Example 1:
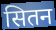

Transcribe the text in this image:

सितन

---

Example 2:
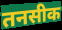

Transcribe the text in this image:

तनसीक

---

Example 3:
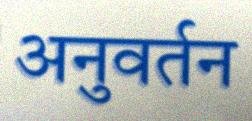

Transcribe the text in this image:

अनुवर्तन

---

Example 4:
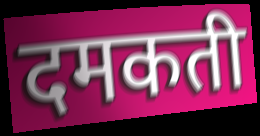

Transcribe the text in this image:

दमकती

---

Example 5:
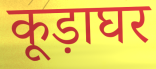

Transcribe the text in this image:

कूड़ाघर